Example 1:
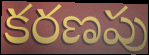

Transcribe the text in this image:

కరణపు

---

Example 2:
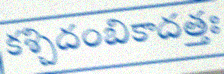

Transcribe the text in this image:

కశ్చిదంబికాదత్తః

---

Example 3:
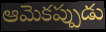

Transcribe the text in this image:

ఆమెకప్పుడు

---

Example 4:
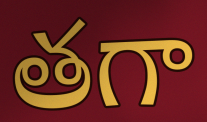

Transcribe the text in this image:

తగా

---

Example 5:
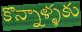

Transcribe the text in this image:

కొన్నాళ్ళకు